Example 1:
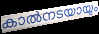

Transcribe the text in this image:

കാൽനടയായും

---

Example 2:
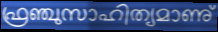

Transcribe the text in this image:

ഫ്രഞ്ചുസാഹിത്യമാണു്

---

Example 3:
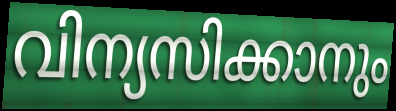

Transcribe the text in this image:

വിന്യസിക്കാനും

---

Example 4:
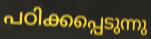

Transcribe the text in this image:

പഠിക്കപ്പെടുന്നു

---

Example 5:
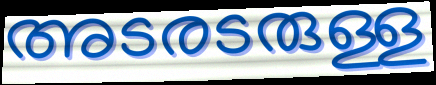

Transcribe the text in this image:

അടരടരുള്ള